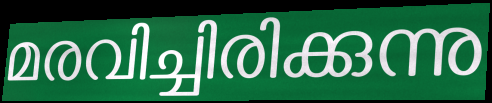
മരവിച്ചിരിക്കുന്നു